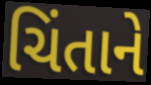
ચિંતાને